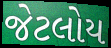
જેટલોય